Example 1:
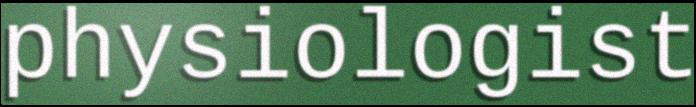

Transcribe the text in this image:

physiologist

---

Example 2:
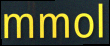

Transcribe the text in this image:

mmol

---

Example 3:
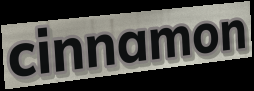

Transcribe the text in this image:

cinnamon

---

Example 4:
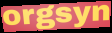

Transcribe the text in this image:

orgsyn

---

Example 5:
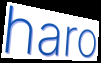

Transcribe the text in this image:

haro